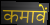
कमावें